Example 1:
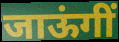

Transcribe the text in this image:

जाऊंगीं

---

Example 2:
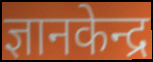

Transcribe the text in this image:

ज्ञानकेन्द्र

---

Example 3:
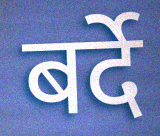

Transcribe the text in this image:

बर्दे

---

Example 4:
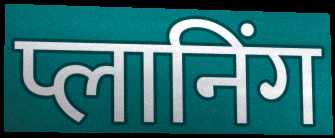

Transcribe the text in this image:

प्लानिंग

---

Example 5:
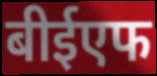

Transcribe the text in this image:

बीईएफ